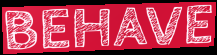
BEHAVE